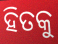
ହିତକୁ